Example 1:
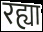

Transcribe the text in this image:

रह्या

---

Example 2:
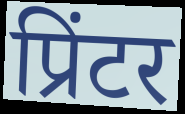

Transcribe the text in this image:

प्रिंटर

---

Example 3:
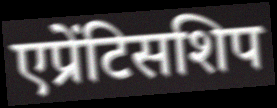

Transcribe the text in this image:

एप्रेंटिसशिप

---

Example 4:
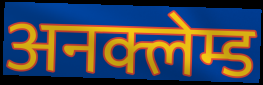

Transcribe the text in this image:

अनक्लेम्ड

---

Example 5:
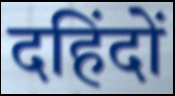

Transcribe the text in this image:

दहिंदों